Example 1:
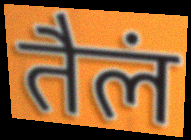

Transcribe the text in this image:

तैलं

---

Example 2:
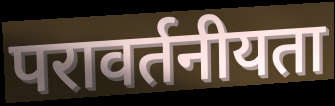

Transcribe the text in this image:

परावर्तनीयता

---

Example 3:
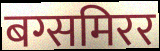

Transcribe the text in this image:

बग्समिरर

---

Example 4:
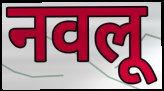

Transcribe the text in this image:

नवलू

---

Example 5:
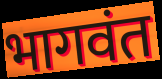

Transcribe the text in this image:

भागवंत